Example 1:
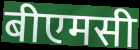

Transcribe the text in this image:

बीएमसी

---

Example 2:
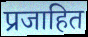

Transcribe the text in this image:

प्रजाहित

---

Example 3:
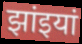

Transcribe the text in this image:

झांइयां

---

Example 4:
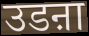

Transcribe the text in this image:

उडऩा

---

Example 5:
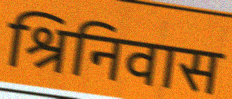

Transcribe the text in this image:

श्रिनिवास